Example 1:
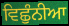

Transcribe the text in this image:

ਵਿਛੁੰਨੀਆ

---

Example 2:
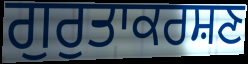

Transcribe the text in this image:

ਗੁਰੁਤਾਕਰਸ਼ਣ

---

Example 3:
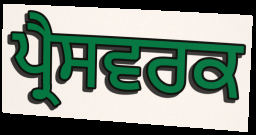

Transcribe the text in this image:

ਪ੍ਰੈਸਵਰਕ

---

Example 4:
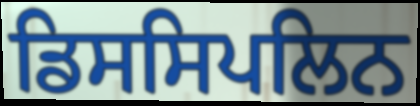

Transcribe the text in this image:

ਡਿਸਸਿਪਲਿਨ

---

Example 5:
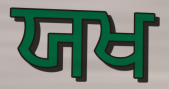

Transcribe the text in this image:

ਯਖ